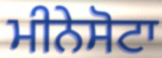
ਮੀਨੇਸੋਟਾ